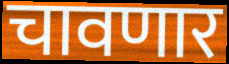
चावणार